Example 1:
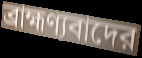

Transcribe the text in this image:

ব্রাহ্মণ্যবাদের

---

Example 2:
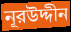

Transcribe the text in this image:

নূরউদ্দীন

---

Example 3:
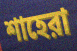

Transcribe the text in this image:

শাহেরা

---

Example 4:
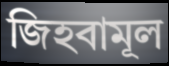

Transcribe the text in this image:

জিহবামূল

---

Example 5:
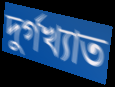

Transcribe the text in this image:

দুর্গখ্যাত